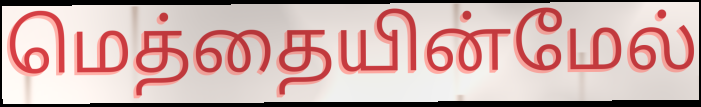
மெத்தையின்மேல்